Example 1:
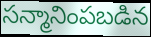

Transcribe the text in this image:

సన్మానింపబడిన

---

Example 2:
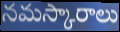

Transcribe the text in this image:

నమస్కారాలు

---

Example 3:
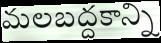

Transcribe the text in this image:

మలబద్దకాన్ని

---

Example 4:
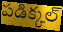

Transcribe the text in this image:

పడిక్కల్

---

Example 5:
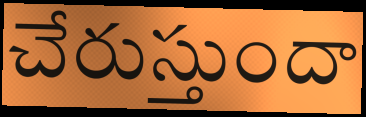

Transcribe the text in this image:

చేరుస్తుందా